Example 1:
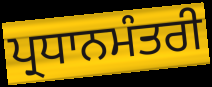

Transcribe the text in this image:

ਪ੍ਰਧਾਨਮੰਤਰੀ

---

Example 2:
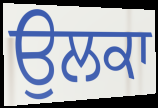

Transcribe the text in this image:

ਉਲਕਾ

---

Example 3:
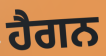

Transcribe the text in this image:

ਹੈਗਨ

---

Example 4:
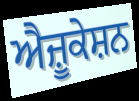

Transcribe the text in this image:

ਐਜ਼ੂਕੇਸ਼ਨ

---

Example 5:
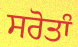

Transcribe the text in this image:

ਸਰੋਤਾੰ